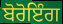
ਬੋਰੋਇੰਗ